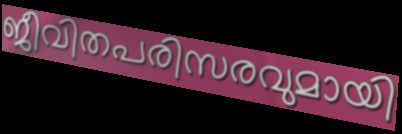
ജീവിതപരിസരവുമായി